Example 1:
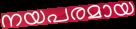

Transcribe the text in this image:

നയപരമായ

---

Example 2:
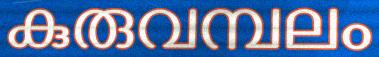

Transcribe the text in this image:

കുരുവമ്പലം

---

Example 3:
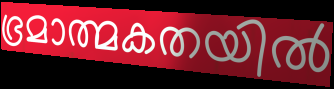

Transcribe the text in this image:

ഭ്രമാത്മകതയിൽ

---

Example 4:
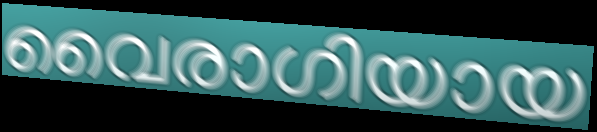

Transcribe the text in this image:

വൈരാഗിയായ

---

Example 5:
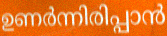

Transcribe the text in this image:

ഉണർന്നിരിപ്പാൻ